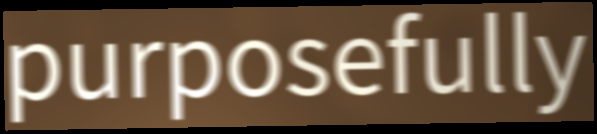
purposefully